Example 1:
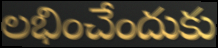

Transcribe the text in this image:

లభించేందుకు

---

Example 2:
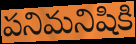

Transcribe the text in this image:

పనిమనిషికి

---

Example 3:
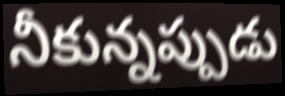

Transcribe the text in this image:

నీకున్నప్పుడు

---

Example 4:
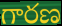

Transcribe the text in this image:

గారణ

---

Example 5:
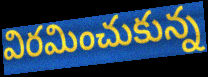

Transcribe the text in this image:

విరమించుకున్న